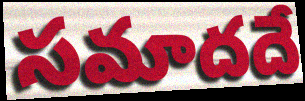
సమాదదే